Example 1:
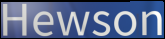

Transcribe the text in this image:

Hewson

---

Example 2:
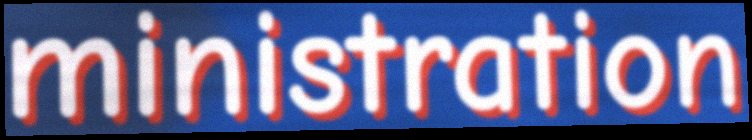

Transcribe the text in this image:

ministration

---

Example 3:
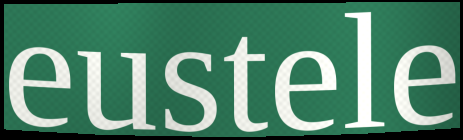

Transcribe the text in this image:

eustele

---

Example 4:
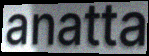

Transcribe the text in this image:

anatta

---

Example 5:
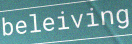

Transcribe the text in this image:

beleiving